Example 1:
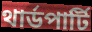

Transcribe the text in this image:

থার্ডপার্টি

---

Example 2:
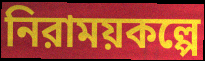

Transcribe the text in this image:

নিরাময়কল্পে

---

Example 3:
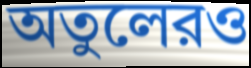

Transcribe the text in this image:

অতুলেরও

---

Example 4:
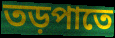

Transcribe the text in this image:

তড়পাতে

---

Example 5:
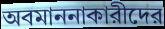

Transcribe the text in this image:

অবমাননাকারীদের